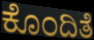
ಕೊಂದಿತೆ